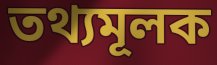
তথ্যমূলক